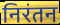
निरंतन